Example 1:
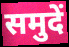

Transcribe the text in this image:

समुदें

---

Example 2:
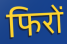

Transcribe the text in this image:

फिरों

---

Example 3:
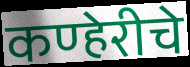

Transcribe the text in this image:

कण्हेरीचे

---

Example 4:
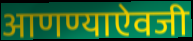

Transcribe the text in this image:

आणण्याऐवजी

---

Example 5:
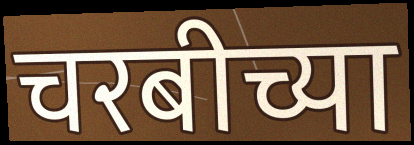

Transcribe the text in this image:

चरबीच्या